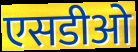
एसडीओ